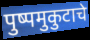
पुष्पमुकुटाचे